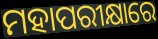
ମହାପରୀକ୍ଷାରେ